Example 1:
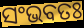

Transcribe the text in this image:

ସଂଭବତଃ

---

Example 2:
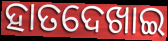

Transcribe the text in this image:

ହାତଦେଖାଇ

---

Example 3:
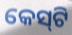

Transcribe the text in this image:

କେସ୍‌ଟି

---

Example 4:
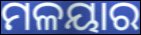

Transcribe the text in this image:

ମଳୟାର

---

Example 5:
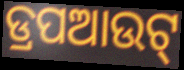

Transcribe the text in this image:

ଡ୍ରପଆଉଟ୍